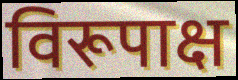
विरूपाक्ष